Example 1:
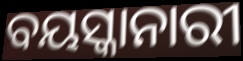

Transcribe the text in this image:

ବୟସ୍କାନାରୀ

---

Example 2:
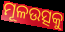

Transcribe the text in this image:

ମୂଳଉତ୍ସକୁ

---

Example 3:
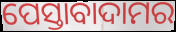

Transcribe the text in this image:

ପେସ୍ତାବାଦାମର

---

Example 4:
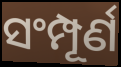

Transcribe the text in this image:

ସଂମ୍ପୂର୍ଣ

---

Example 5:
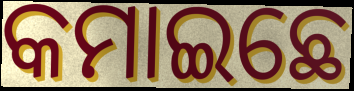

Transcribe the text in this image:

କମାଇଛେ